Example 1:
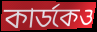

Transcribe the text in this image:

কার্ডকেও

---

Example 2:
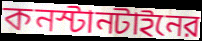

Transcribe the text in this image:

কনস্টানটাইনের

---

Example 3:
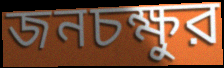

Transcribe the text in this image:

জনচক্ষুর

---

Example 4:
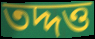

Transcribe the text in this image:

তদ্দত্ত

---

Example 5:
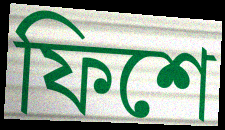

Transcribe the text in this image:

ফিশে